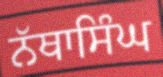
ਨੱਥਾਸਿੰਘ